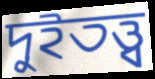
দুইতত্ত্ব